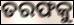
ତରଫକୁ